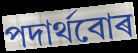
পদাৰ্থবোৰ